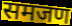
समजण